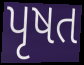
પૃષત